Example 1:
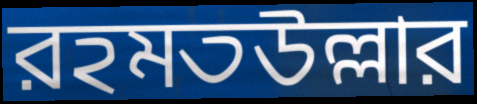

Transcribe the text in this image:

রহমতউল্লার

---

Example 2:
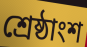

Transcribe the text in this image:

শ্রেষ্ঠাংশ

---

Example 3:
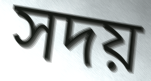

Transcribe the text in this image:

সদয়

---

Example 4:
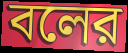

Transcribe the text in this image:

বলের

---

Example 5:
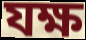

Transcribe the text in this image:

যক্ষ